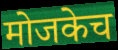
मोजकेच